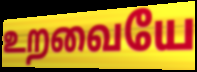
உறவையே